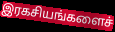
இரகசியங்களைச்